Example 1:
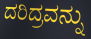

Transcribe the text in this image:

ದರಿದ್ರವನ್ನು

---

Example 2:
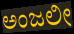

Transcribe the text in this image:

ಅಂಜಲೀ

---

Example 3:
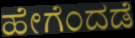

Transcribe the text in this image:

ಹೇಗೆಂದಡೆ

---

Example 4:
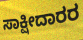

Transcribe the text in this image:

ಸಾಕ್ಷೀದಾರರ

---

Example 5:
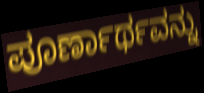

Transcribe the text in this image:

ಪೂರ್ಣಾರ್ಥವನ್ನು